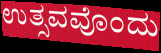
ಉತ್ಸವವೊಂದು